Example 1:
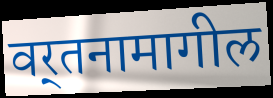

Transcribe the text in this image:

वर्तनामागील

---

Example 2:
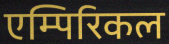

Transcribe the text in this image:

एम्पिरिकल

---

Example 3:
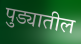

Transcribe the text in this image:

पुड्यातील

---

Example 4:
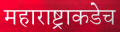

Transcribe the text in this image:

महाराष्ट्राकडेच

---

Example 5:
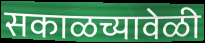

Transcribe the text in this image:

सकाळच्यावेळी